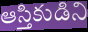
ఆస్తికుడిని